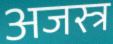
अजस्त्र